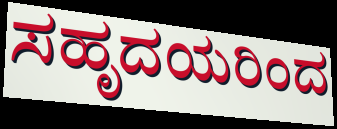
ಸಹೃದಯರಿಂದ